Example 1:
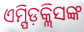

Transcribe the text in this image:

ଏମ୍ପିଡ଼କ୍ଲିସଙ୍କ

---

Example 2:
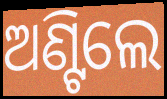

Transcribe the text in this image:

ଅଣ୍ଟିଲେ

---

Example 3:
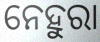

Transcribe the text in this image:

ନେହୁରା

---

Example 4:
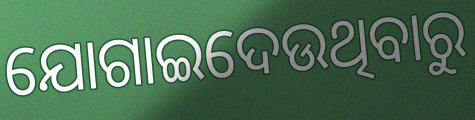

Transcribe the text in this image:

ଯୋଗାଇଦେଉଥିବାରୁ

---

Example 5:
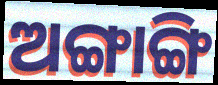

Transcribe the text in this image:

ଅଙ୍ଗାଙ୍ଗି